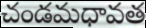
చండమధావత